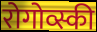
रोगोव्स्की